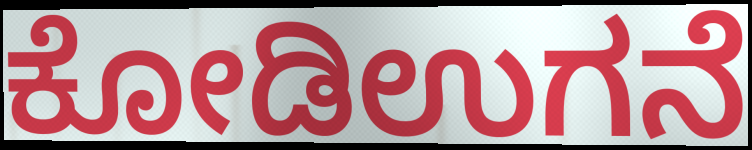
ಕೋಡಿಉಗನೆ